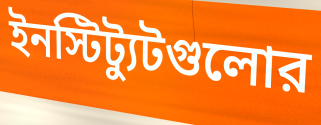
ইনস্টিট্যুটগুলোর